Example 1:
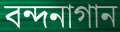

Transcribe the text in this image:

বন্দনাগান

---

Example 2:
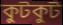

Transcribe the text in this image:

কুটকুট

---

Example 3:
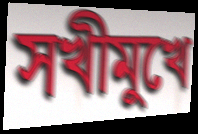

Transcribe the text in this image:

সখীমুখে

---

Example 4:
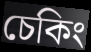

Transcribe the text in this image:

চেকিং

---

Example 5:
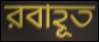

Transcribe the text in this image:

রবাহূত